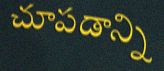
చూపడాన్ని